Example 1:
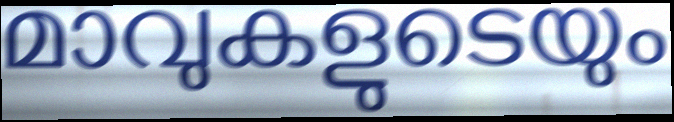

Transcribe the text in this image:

മാവുകളുടെയും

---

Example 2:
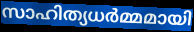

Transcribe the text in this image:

സാഹിത്യധർമ്മമായി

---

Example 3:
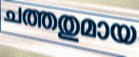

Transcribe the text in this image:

ചത്തതുമായ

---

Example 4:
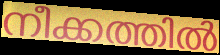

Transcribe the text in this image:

നീക്കത്തിൽ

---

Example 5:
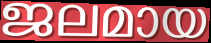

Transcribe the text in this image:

ജലമായ